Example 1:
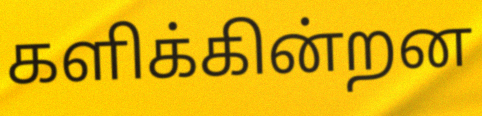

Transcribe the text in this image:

களிக்கின்றன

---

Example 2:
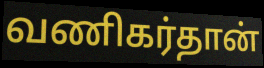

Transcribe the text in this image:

வணிகர்தான்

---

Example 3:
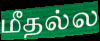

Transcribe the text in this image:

மீதல்ல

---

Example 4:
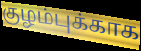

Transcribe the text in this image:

குழம்புக்காக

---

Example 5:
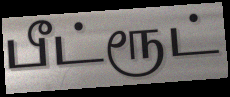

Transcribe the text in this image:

பீட்ரூட்